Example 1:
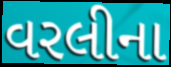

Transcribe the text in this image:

વરલીના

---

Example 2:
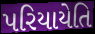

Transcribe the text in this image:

પરિયાયેતિ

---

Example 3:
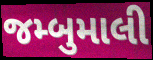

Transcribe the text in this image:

જમ્બુમાલી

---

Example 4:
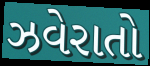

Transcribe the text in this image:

ઝવેરાતો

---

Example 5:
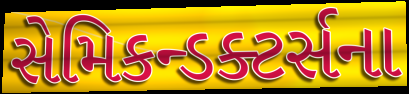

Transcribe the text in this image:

સેમિકન્ડક્ટર્સના